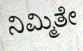
ನಿಮ್ಮಿತೇ